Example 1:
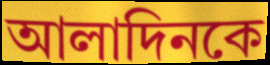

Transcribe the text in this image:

আলাদিনকে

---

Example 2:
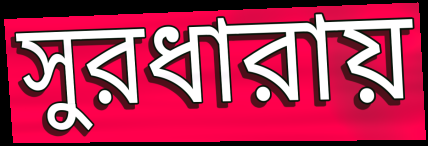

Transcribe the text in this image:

সুরধারায়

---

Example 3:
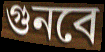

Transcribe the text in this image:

গুনবে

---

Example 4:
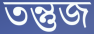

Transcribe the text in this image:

তন্তুজ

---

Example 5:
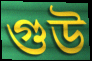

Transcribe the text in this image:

গুউ